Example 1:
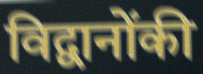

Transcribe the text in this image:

विद्वानोंकी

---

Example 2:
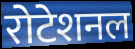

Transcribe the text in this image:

रोटेशनल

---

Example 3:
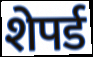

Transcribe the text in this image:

शेपर्ड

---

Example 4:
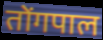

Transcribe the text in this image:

तोंगपाल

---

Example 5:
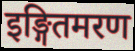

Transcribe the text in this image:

इङ्गितमरण